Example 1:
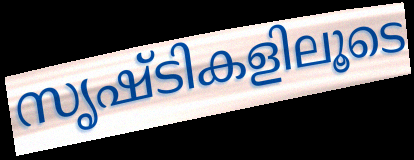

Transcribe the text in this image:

സൃഷ്ടികളിലൂടെ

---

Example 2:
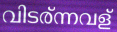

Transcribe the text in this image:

വിടര്ന്നവള്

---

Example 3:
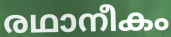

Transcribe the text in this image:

രഥാനീകം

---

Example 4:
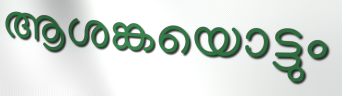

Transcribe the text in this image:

ആശങ്കയൊട്ടും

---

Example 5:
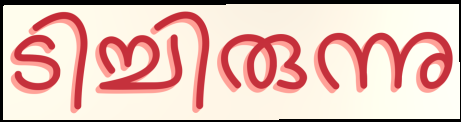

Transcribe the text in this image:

ടിച്ചിരുന്നു